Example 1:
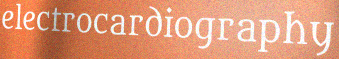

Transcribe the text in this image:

electrocardiography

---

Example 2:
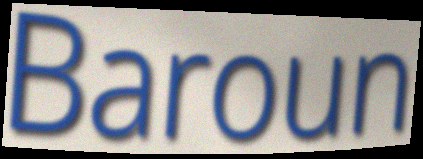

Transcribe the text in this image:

Baroun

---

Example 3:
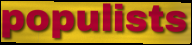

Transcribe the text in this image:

populists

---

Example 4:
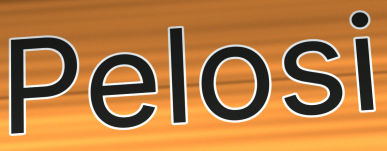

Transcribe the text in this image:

Pelosi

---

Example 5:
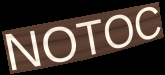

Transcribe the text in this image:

NOTOC